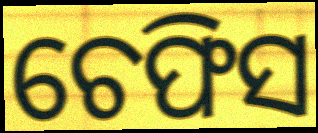
ଚେଫିସ